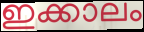
ഇക്കാലം